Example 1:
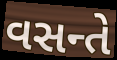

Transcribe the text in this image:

વસન્તે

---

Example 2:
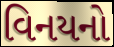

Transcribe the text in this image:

વિનયનો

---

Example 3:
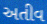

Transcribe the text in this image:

અતીવ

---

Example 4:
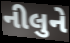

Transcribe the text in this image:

નીલુને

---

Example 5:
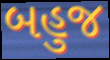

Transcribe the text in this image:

બહુજ